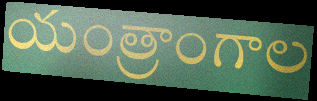
యంత్రాంగాల